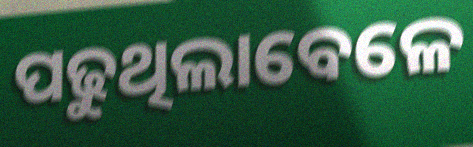
ପଢୁଥିଲାବେଳେ